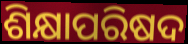
ଶିକ୍ଷାପରିଷଦ